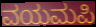
ವಯಮಪಿ